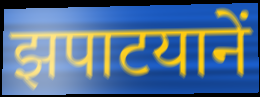
झपाटयानें